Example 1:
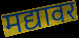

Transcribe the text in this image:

मद्यावर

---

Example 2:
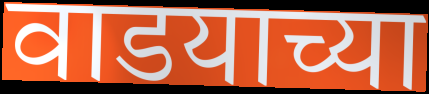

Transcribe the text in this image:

वाडयाच्या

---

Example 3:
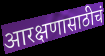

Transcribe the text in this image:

आरक्षणासाठीचं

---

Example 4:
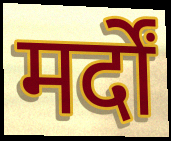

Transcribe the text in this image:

मर्दों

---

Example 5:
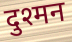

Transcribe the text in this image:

दुश्मन